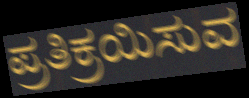
ಪ್ರತಿಕ್ರಯಿಸುವ